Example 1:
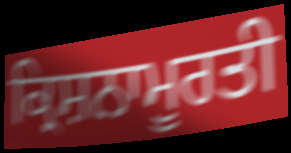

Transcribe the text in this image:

ਕ੍ਰਿਸ਼ਨਾਮੂਰਤੀ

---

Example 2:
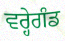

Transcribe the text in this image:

ਵਰ੍ਹੇਗੰਡ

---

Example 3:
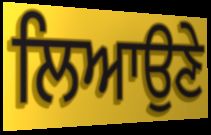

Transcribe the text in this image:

ਲਿਆਉਣੇ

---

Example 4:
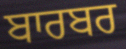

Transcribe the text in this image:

ਬਾਰਬਰ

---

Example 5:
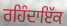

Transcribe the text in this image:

ਰਹਿੰਦਾਇੱਕ